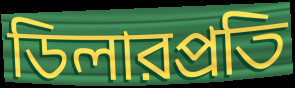
ডিলারপ্রতি